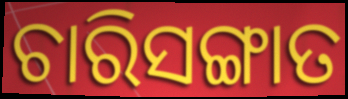
ଚାରିସଙ୍ଗାତ